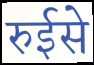
रुईसे